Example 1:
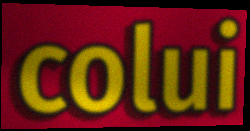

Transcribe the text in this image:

colui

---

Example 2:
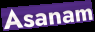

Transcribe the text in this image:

Asanam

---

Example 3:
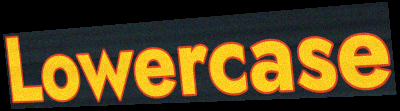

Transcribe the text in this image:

Lowercase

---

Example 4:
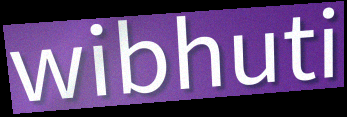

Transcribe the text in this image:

wibhuti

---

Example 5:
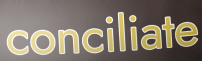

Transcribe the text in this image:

conciliate